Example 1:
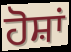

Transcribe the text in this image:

ਹੋਸ਼ਾਂ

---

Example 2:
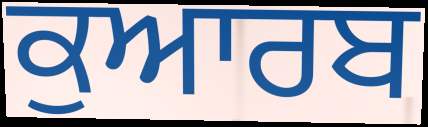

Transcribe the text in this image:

ਕੁਆਰਬ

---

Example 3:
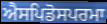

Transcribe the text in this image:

ਐਸਪਿਡੋਸਪਰਮਾ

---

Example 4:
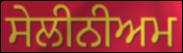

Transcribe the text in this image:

ਸੇਲੀਨੀਅਮ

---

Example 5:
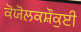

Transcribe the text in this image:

ਕੋਯੋਲਕਸ਼ੌਕੁਈ